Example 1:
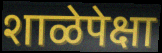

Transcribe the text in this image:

शाळेपेक्षा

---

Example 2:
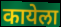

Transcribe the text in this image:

कायेला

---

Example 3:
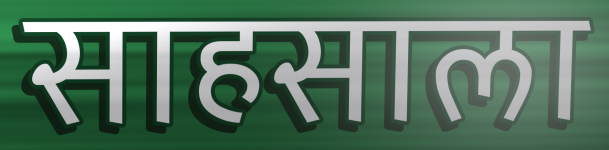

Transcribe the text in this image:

साहसाला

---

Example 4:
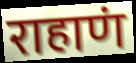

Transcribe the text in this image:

राहाणं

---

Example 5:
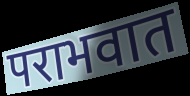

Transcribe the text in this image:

पराभवात